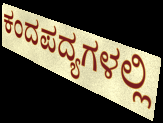
ಕಂದಪದ್ಯಗಳಲ್ಲಿ